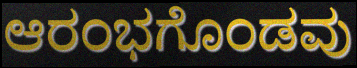
ಆರಂಭಗೊಂಡವು